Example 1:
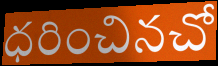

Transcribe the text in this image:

ధరించినచో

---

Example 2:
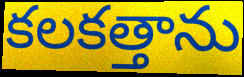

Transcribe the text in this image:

కలకత్తాను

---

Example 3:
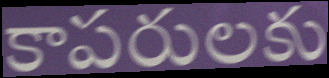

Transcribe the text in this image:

కాపరులకు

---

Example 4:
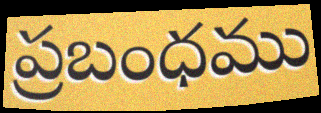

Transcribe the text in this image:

ప్రబంధము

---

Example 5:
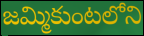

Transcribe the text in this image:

జమ్మికుంటలోని